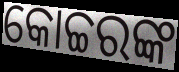
କୋଚ୍ଚରଙ୍କ